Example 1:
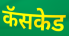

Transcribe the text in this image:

कॅसकेड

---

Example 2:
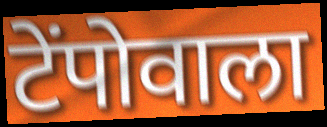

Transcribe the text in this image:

टेंपोवाला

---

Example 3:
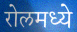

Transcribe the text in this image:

रोलमध्ये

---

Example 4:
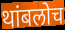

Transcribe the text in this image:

थांबलोच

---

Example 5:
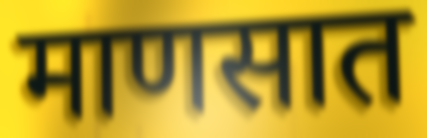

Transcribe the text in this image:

माणसात